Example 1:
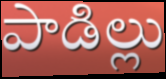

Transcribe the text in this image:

పాడిల్లు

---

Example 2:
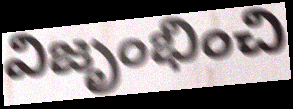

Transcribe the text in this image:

విజృంభించి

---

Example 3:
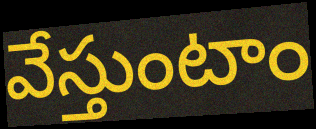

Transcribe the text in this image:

వేస్తుంటాం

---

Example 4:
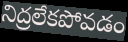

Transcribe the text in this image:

నిద్రలేకపోవడం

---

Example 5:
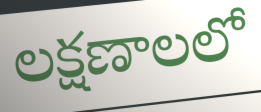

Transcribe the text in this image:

లక్షణాలలో